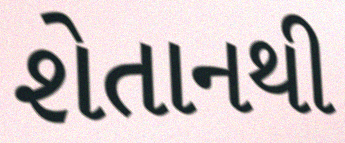
શેતાનથી